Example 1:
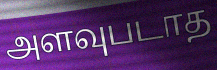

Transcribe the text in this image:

அளவுபடாத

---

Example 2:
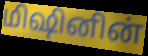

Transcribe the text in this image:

மிஷினின்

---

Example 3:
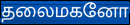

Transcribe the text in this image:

தலைமகனோ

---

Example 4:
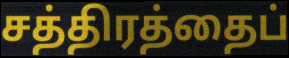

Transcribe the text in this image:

சத்திரத்தைப்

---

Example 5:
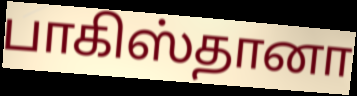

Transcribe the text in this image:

பாகிஸ்தானா